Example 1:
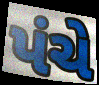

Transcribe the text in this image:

પંચે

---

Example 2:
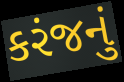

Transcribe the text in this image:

કરંજનું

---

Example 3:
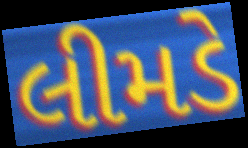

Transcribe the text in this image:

લીમડે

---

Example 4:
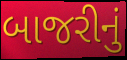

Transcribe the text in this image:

બાજરીનું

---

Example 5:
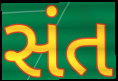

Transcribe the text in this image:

સંત